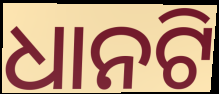
ଧାନଟି